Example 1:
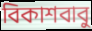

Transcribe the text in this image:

বিকাশবাবু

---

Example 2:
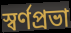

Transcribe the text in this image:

স্বর্ণপ্রভা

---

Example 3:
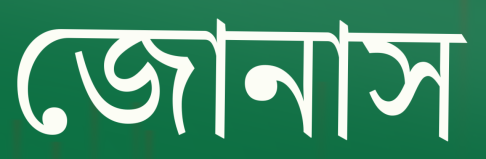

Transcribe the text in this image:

জোনাস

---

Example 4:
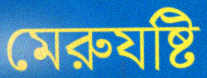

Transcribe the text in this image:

মেরুযষ্টি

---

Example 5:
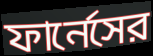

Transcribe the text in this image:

ফার্নেসের